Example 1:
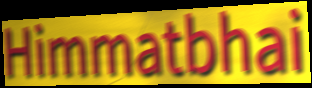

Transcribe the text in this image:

Himmatbhai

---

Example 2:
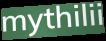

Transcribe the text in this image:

mythilii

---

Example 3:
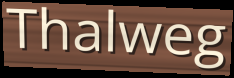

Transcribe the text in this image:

Thalweg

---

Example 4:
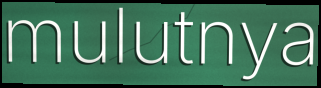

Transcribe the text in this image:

mulutnya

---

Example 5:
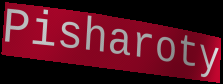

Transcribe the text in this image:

Pisharoty